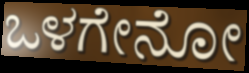
ಒಳಗೇನೋ